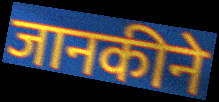
जानकीने